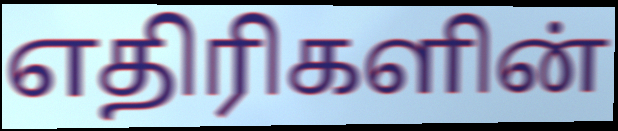
எதிரிகளின்